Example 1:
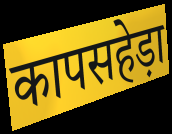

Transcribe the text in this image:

कापसहेड़ा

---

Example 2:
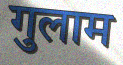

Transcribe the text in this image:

गुलाम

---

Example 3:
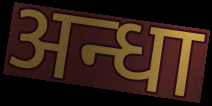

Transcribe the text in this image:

अन्धा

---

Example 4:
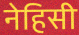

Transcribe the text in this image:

नेहिसी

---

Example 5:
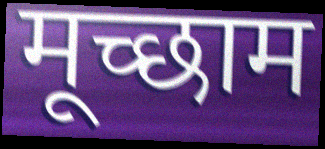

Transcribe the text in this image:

मूच्छाम